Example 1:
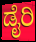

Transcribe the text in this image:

ಡೈರಿ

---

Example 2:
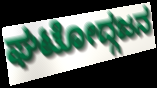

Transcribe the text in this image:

ಘಟೋದ್ಗಜನ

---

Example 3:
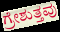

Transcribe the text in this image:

ಗ್ರೇಶುತ್ತವು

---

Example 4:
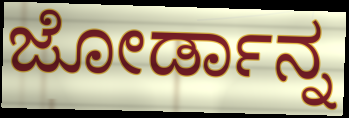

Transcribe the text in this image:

ಜೋರ್ಡಾನ್ನ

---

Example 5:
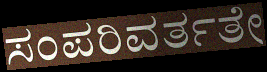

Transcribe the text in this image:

ಸಂಪರಿವರ್ತತೇ